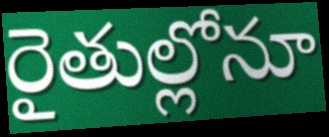
రైతుల్లోనూ